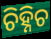
ଚିହ୍ନିଚ